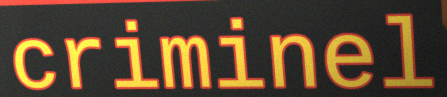
criminel